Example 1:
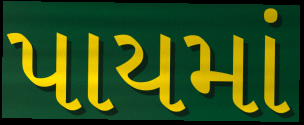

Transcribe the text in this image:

પાયમાં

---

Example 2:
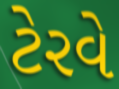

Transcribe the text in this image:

ટેરવે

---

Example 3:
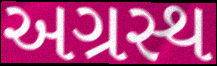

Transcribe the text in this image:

અગ્રસ્થ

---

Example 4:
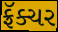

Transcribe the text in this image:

ફ્રૅક્ચર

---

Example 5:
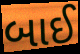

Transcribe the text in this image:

બાઈ